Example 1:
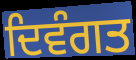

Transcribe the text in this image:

ਦਿਵੰਗਤ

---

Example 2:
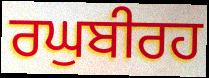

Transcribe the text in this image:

ਰਘੁਬੀਰਹ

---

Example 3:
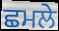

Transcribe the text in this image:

ਛਮਲੇ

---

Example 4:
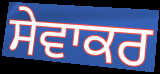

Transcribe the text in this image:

ਸੇਵਾਕਰ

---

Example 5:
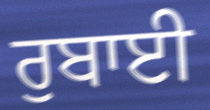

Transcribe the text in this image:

ਰੁਬਾਈ